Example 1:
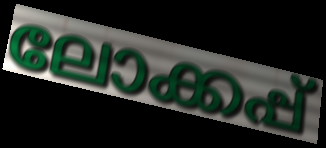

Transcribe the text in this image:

ലോക്കപ്പ്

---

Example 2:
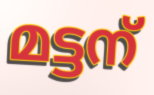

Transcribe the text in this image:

മട്ടന്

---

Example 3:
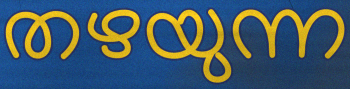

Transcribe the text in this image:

തഴയുന്ന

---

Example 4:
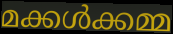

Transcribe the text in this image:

മക്കൾക്കമ്മ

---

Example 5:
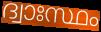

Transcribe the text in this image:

ദ്വാഃസ്ഥം